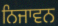
ਨਿਜਾਵਨ